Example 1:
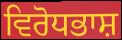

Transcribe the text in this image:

ਵਿਰੋਧਭਾਸ਼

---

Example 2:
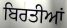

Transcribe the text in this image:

ਬਿਰਤੀਆਂ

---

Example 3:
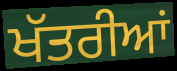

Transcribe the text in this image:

ਖੱਤਰੀਆਂ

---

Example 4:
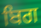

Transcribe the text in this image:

ਬਿਗ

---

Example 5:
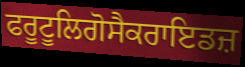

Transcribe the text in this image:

ਫਰੂਟੂਲਿਗੋਸੈਕਰਾਇਡਜ਼